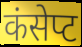
कंसेप्ट